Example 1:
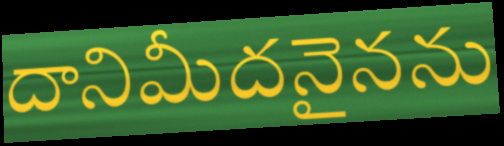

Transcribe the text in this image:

దానిమీదనైనను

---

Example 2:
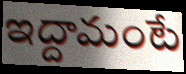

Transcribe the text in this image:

ఇద్దామంటే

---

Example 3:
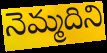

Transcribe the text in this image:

నెమ్మదిని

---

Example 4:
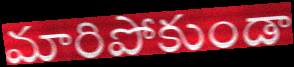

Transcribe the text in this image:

మారిపోకుండా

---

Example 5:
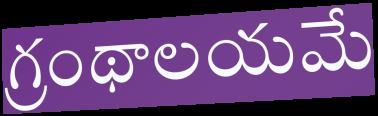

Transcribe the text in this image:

గ్రంథాలయమే